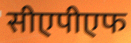
सीएपीएफ